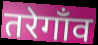
तरेगाँव